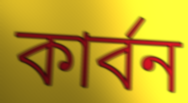
কার্বন